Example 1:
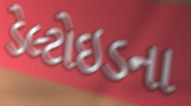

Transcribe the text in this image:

ડેલ્ટોઇડના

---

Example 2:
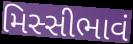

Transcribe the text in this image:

મિસ્સીભાવં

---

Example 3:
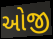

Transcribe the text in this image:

ઓજી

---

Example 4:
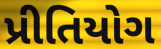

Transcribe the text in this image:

પ્રીતિયોગ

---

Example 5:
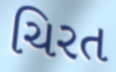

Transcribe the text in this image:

ચિરત